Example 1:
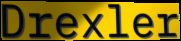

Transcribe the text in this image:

Drexler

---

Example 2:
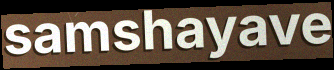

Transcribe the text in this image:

samshayave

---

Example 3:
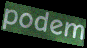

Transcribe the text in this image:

podem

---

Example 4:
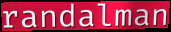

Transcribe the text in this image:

randalman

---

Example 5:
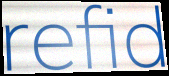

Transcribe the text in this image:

refid